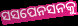
ସସପେନସନକୁ